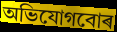
অভিযোগবোৰ